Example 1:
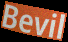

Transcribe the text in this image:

Bevil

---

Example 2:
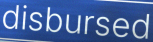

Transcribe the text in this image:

disbursed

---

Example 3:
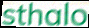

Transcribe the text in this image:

sthalo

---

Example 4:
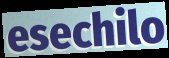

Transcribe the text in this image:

esechilo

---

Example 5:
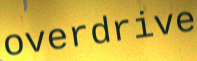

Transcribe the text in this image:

overdrive